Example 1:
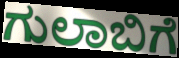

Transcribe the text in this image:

ಗುಲಾಬಿಗೆ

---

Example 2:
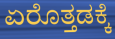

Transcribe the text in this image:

ಏರೊತ್ತಡಕ್ಕೆ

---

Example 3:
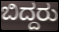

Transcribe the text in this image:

ಬಿದ್ದರು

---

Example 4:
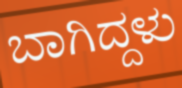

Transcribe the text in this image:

ಬಾಗಿದ್ದಳು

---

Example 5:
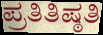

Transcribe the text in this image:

ಪ್ರತಿತಿಷ್ಠತಿ